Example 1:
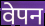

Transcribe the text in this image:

वेपन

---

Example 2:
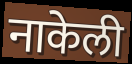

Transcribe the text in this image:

नाकेली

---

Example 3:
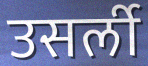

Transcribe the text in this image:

उसर्ली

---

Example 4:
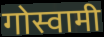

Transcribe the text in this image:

गोस्वामी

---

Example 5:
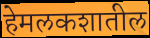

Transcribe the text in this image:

हेमलकशातील